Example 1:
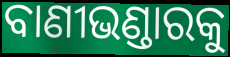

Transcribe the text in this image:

ବାଣୀଭଣ୍ଡାରକୁ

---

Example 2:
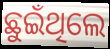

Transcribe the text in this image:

ଛୁଇଁଥିଲେ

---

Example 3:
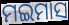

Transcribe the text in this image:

ମଇମାସ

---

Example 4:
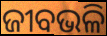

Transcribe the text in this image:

ଜୀବଭଳି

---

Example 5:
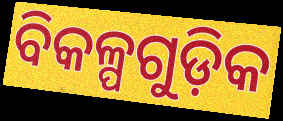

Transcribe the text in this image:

ବିକଳ୍ପଗୁଡ଼ିକ